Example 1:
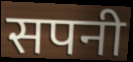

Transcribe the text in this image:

सपनी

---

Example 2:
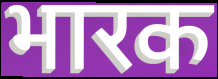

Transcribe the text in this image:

भारक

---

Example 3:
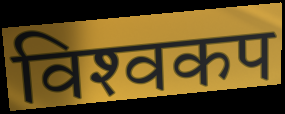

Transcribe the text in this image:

विश्‍वकप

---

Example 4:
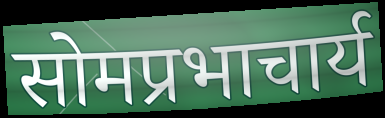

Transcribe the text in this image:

सोमप्रभाचार्य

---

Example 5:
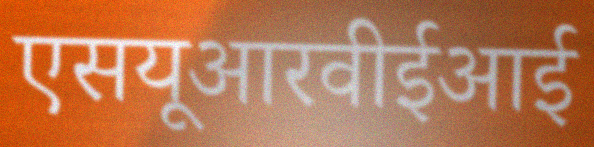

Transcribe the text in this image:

एसयूआरवीईआई